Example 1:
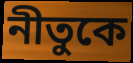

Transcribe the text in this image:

নীতুকে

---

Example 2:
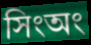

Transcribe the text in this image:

সিংঅং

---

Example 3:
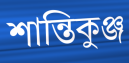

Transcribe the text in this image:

শান্তিকুঞ্জ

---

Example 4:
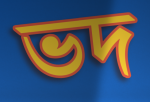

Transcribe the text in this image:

ভদ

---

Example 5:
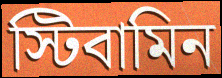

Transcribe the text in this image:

স্টিবামিন